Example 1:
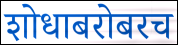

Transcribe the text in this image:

शोधाबरोबरच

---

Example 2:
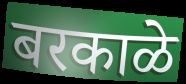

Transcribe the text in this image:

बरकाळे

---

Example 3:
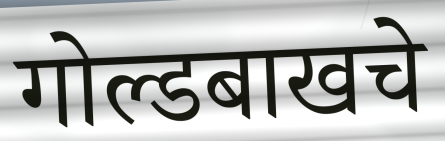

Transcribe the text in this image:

गोल्डबाखचे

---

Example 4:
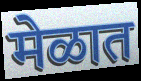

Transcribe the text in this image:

मेळात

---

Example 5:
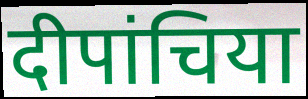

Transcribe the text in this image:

दीपांचिया